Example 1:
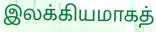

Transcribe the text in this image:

இலக்கியமாகத்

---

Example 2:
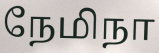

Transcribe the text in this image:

நேமிநா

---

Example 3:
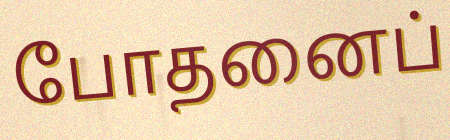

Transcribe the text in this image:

போதனைப்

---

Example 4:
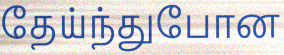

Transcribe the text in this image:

தேய்ந்துபோன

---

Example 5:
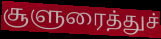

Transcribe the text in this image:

சூளுரைத்துச்